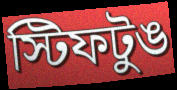
স্টিফটুঙ